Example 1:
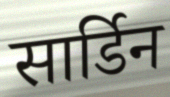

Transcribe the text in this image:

सार्डिन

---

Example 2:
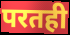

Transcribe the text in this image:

परतही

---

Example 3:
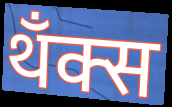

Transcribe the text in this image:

थँक्स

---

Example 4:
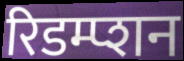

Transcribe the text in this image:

रिडम्प्शन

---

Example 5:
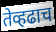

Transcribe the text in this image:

तेव्हढाच